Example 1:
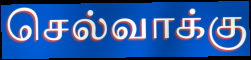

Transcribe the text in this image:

செல்வாக்கு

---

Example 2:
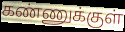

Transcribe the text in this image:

கண்ணுக்குள்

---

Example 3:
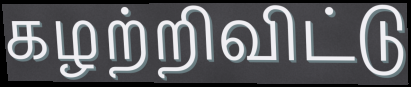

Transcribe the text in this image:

கழற்றிவிட்டு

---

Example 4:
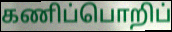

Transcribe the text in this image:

கணிப்பொறிப்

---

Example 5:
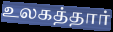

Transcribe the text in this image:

உலகத்தார்